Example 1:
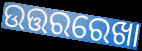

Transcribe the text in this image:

ଉତ୍ତରରେଖା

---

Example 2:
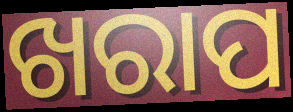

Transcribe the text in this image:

ଖରାପ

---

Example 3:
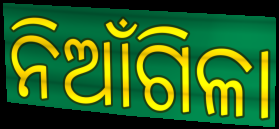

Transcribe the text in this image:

ନିଆଁଗିଳା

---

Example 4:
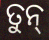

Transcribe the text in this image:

ତୁନ୍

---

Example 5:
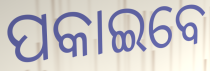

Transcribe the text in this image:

ପକାଇବେ